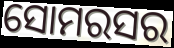
ସୋମରସର